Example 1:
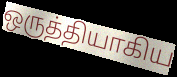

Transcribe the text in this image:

ஒருத்தியாகிய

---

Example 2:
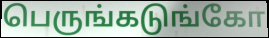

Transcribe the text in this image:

பெருங்கடுங்கோ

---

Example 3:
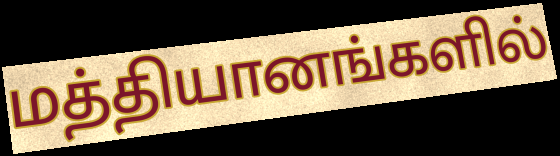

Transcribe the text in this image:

மத்தியானங்களில்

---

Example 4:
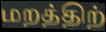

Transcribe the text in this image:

மறத்திற்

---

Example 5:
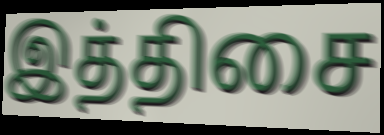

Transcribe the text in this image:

இத்திசை